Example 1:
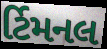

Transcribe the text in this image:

ર્ટિમનલ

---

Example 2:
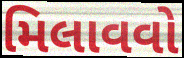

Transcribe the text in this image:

મિલાવવો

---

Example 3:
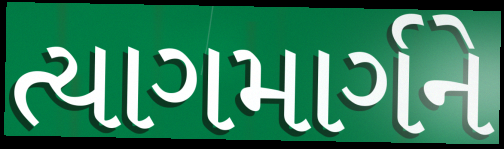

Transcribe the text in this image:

ત્યાગમાર્ગને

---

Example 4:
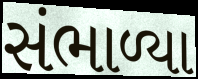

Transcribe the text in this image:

સંભાળ્યા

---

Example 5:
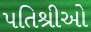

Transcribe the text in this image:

પતિશ્રીઓ